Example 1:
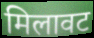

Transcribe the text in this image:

मिलावट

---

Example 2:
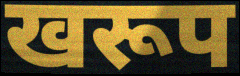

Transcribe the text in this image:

खरूप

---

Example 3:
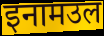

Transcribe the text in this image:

इनामउल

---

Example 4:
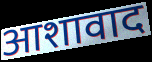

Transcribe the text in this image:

आशावाद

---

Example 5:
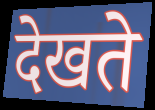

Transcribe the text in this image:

देखते